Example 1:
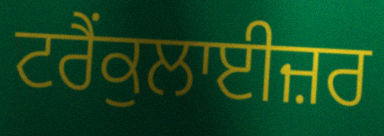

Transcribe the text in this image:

ਟਰੈਂਕੁਲਾਈਜ਼ਰ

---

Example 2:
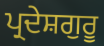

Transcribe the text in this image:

ਪ੍ਰਦੇਸ਼ਗੁਰੂ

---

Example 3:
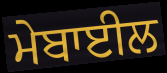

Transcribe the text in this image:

ਮੇਬਾਈਲ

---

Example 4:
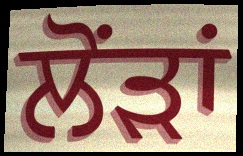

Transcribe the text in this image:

ਲੋਂੜਾਂ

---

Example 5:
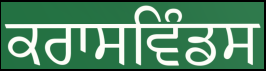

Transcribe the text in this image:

ਕਰਾਸਵਿੰਡਸ